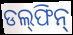
ଡଲ୍‍ଫିନ୍